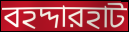
বহদ্দারহাট